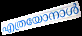
എത്രയോനാൾ